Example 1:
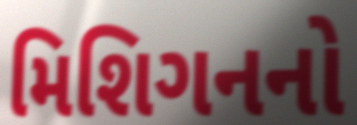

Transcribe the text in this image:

મિશિગનનો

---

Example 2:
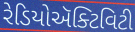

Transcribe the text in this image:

રેડિયોઍક્ટિવિટી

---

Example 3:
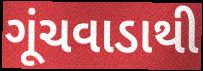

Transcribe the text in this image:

ગૂંચવાડાથી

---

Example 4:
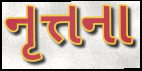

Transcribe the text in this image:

નૃત્તના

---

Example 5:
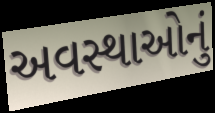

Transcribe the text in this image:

અવસ્થાઓનું